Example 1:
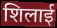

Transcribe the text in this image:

शिलाई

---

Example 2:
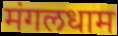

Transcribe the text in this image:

मंगलधाम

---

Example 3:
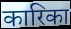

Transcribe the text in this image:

कारिका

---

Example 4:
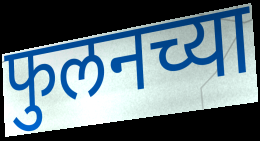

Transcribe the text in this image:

फुलनच्या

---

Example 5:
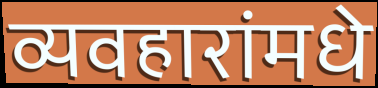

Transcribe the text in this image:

व्यवहारांमधे